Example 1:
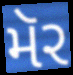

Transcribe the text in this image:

મૅર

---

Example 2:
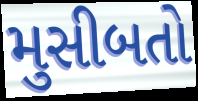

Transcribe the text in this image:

મુસીબતો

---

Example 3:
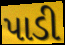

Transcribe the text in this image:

પાડી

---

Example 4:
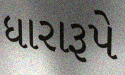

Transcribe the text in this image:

ધારારૂપે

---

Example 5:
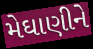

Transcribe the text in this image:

મેઘાણીને